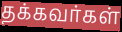
தக்கவர்கள்